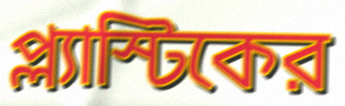
প্ল্যাস্টিকের